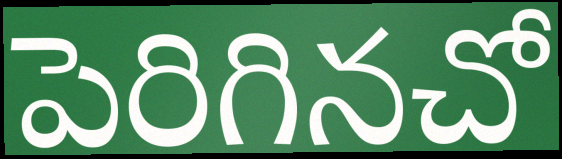
పెరిగినచో